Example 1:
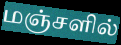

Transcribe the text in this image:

மஞ்சளில்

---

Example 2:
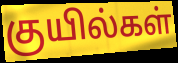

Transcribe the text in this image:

குயில்கள்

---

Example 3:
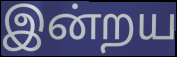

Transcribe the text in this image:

இன்றய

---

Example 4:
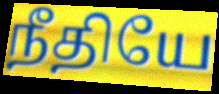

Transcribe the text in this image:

நீதியே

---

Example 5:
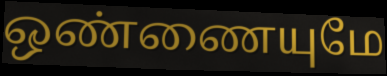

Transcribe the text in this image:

ஒண்ணையுமே